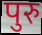
पुरु